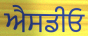
ਐਸਡੀਓ